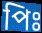
পিঃ